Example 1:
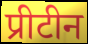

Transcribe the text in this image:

प्रीटीन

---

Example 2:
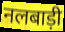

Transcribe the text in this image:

नलबाड़ी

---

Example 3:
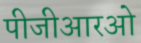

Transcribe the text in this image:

पीजीआरओ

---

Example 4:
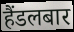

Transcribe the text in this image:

हैंडलबार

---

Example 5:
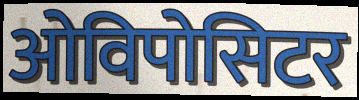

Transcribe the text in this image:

ओविपोसिटर